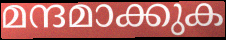
മന്ദമാക്കുക